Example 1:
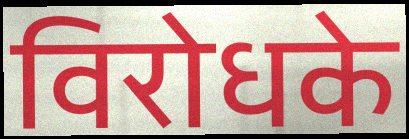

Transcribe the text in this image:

विरोधके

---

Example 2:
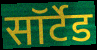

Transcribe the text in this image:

सॉर्टेड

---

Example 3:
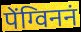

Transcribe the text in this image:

पेंग्विननं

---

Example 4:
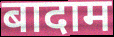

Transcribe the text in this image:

बादाम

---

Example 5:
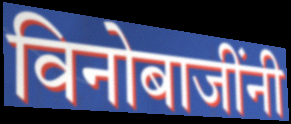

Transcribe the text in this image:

विनोबाजींनी